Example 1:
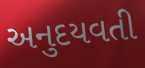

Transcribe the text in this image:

અનુદયવતી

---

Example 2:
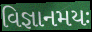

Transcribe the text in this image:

વિજ્ઞાનમયઃ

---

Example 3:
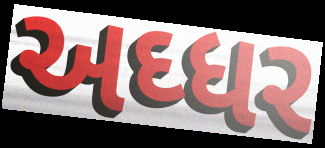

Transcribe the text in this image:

અઘ્ધર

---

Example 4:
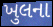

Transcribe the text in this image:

ખુલના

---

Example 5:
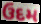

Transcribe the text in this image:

ઉદમ